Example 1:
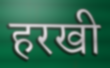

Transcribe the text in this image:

हरखी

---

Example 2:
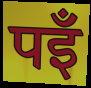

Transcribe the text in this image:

पइँ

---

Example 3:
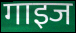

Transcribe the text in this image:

गाइज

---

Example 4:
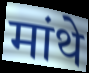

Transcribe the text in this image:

मांथे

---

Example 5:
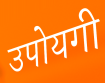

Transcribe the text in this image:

उपोयगी